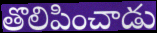
తొలిపించాడు